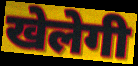
खेलेगी